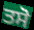
ਤਸੋ